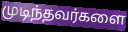
முடிந்தவர்களை